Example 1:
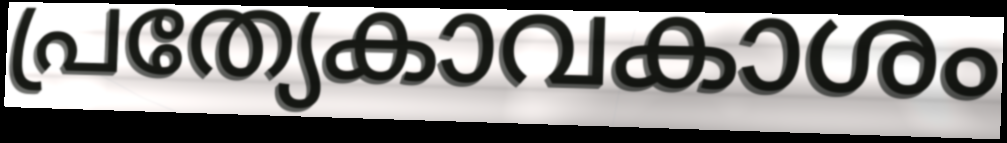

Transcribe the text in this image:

പ്രത്യേകാവകാശം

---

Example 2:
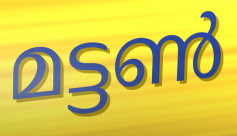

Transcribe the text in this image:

മട്ടൺ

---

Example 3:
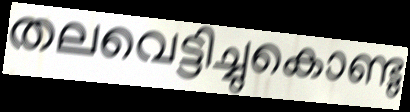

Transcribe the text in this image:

തലവെട്ടിച്ചുകൊണ്ടു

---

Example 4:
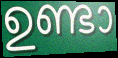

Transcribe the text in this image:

ഉണ്ടാ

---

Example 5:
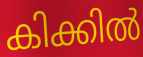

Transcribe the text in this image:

കിക്കിൽ